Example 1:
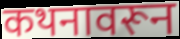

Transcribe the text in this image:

कथनावरून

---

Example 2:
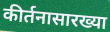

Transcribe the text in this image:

कीर्तनासारख्या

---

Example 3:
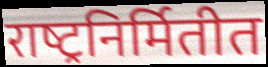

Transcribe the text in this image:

राष्ट्रनिर्मितीत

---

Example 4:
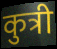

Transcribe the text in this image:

कुत्री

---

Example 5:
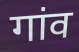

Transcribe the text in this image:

गांव